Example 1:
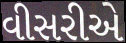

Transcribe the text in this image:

વીસરીએ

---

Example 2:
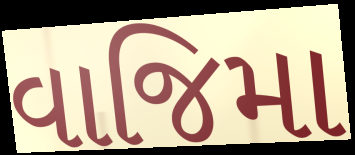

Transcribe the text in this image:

વાજિમા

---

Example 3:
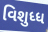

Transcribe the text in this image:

વિશુધ્ધ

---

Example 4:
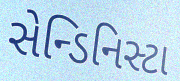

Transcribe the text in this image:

સેન્ડિનિસ્ટા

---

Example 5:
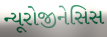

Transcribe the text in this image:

ન્યૂરોજીનેસિસ